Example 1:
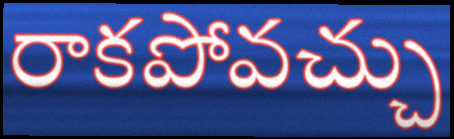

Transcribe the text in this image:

రాకపోవచ్చు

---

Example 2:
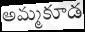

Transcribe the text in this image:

అమ్మకూడ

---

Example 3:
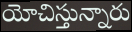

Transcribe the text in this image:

యోచిస్తున్నారు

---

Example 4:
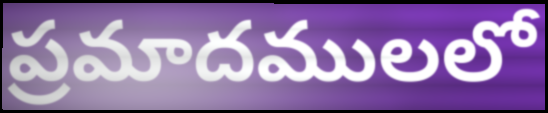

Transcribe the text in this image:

ప్రమాదములలో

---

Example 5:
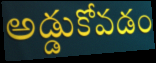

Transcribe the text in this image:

అడ్డుకోవడం